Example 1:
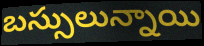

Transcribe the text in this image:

బస్సులున్నాయి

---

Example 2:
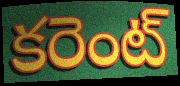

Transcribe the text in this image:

కరెంట్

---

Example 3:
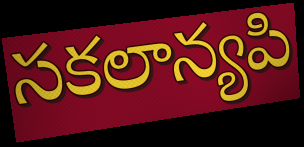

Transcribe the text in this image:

సకలాన్యపి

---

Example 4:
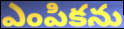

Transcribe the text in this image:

ఎంపికను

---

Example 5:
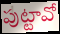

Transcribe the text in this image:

పుట్టావో